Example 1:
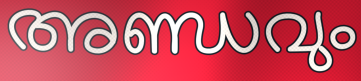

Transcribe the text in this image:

അണ്ഡവും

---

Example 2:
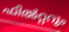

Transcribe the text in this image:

ഫിൽറ്ററും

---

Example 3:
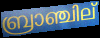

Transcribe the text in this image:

ബ്രാഞ്ചില്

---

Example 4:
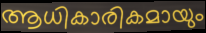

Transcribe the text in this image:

ആധികാരികമായും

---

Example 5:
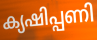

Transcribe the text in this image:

ക്യഷിപ്പണി